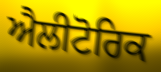
ਐਲੀਟੋਰਿਕ